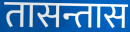
तासन्तास